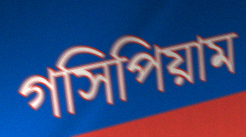
গসিপিয়াম